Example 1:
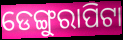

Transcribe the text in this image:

ଡେଙ୍ଗୁରାପିଟା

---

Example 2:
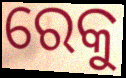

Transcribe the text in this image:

ରେକୁ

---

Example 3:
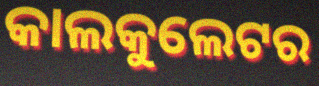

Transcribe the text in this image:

କାଲକୁଲେଟର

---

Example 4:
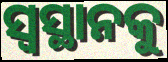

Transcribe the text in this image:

ସ୍ୱସ୍ଥାନକୁ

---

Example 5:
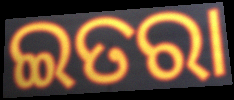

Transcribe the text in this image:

ଇତରା